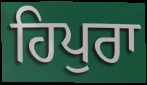
ਹਿਪੁਰਾ